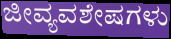
ಜೀವ್ಯವಶೇಷಗಳು